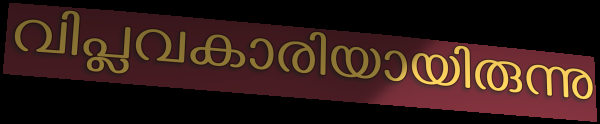
വിപ്ലവകാരിയായിരുന്നു